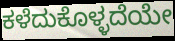
ಕಳೆದುಕೊಳ್ಳದೆಯೇ